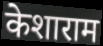
केशाराम